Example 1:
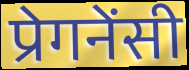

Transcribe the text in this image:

प्रेगनेंसी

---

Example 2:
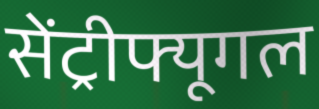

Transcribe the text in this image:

सेंट्रीफ्यूगल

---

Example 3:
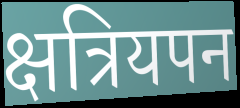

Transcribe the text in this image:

क्षत्रियपन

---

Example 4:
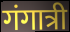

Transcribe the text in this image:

गंगात्री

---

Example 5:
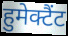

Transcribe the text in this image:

हुमेक्टैंट